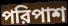
পরিপাশ